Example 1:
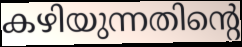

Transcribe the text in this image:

കഴിയുന്നതിന്റെ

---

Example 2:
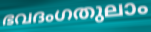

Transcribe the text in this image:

ഭവദംഗതുലാം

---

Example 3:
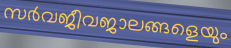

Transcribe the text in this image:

സർവജീവജാലങ്ങളെയും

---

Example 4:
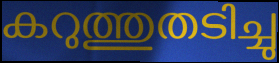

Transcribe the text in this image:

കറുത്തുതടിച്ചു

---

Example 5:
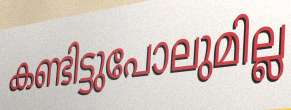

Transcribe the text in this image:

കണ്ടിട്ടുപോലുമില്ല